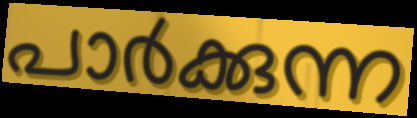
പാർക്കുന്ന